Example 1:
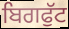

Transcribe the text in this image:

ਬਿਗਫੁੱਟ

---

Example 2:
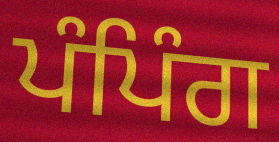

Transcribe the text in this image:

ਪੰਪਿੰਗ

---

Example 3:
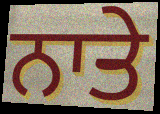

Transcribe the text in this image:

ਨਾਤੇ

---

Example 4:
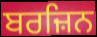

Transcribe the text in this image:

ਬਰਜ਼ਿਨ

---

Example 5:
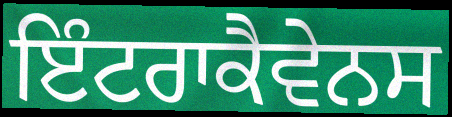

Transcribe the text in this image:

ਇੰਟਰਾਕੈਵੇਨਸ